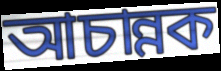
আচান্নক